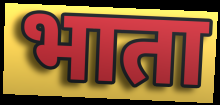
भाता